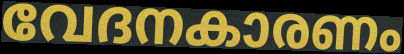
വേദനകാരണം